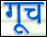
गूच